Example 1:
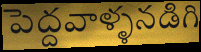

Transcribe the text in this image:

పెద్దవాళ్ళనడిగి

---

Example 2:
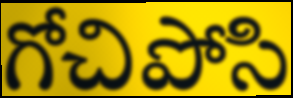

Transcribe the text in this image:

గోచిపోసి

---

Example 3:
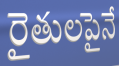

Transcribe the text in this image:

రైతులపైనే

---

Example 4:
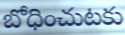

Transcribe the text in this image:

బోధించుటకు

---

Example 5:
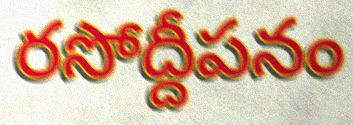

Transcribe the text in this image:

రసోద్దీపనం